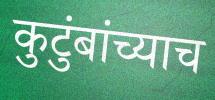
कुटुंबांच्याच